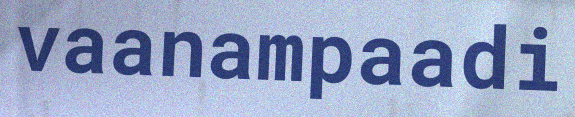
vaanampaadi